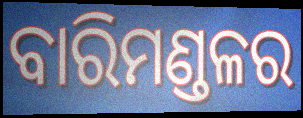
ବାରିମଣ୍ଡଳର